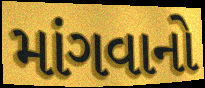
માંગવાનો